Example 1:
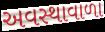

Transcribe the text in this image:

અવસ્થાવાળા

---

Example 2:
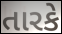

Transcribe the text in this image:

તારકે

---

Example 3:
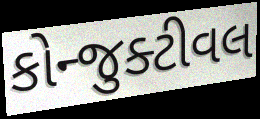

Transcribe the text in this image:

કોન્જુક્ટીવલ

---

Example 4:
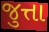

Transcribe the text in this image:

જુત્તા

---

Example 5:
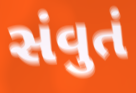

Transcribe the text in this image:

સંવુતં